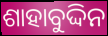
ଶାହାବୁଦ୍ଦିନ